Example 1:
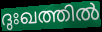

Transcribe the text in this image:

ദുഃഖത്തിൽ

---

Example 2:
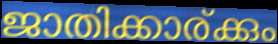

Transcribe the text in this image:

ജാതിക്കാര്ക്കും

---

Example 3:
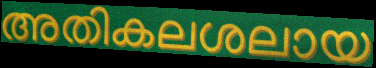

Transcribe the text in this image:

അതികലശലായ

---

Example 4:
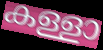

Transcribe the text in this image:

കള്ളാ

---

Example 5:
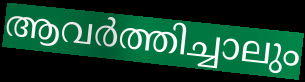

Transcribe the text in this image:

ആവർത്തിച്ചാലും